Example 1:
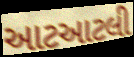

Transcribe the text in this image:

આટઆટલી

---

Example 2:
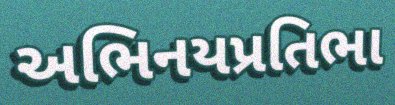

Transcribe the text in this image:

અભિનયપ્રતિભા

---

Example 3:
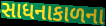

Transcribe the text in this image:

સાધનાકાળના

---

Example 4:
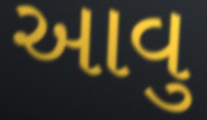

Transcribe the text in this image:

આવુ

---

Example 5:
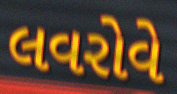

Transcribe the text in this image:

લવરોવે